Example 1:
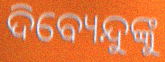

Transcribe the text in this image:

ଦିବ୍ୟେନ୍ଦୁଙ୍କୁ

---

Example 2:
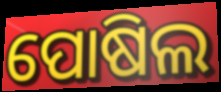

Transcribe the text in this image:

ପୋଷିଲ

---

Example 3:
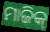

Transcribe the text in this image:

ମାଜିକ୍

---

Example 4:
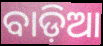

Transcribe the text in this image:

ବାଡ଼ିଆ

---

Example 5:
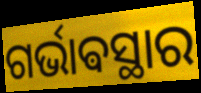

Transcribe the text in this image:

ଗର୍ଭାଵସ୍ଥାର